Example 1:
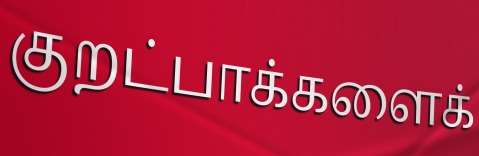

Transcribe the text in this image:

குறட்பாக்களைக்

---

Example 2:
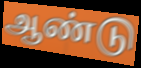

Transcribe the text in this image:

ஆண்டு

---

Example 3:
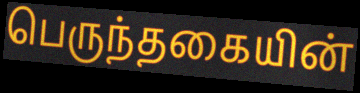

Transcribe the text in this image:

பெருந்தகையின்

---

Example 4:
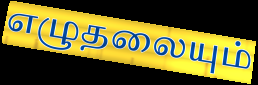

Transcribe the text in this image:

எழுதலையும்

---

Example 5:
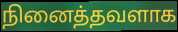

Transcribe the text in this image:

நினைத்தவளாக